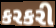
કરકરી